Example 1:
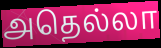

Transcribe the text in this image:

அதெல்லா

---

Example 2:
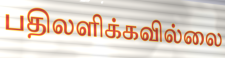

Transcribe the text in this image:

பதிலளிக்கவில்லை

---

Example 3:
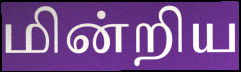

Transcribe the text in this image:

மின்றிய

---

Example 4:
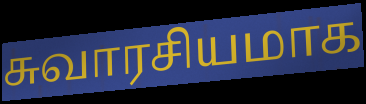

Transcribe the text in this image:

சுவாரசியமாக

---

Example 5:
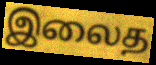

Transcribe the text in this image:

இலைத